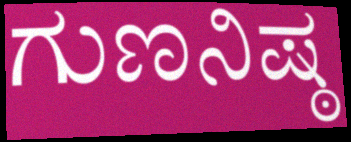
ಗುಣನಿಷ್ಠ